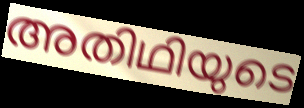
അതിഥിയുടെ